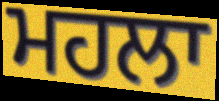
ਮਹਲਾ